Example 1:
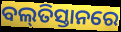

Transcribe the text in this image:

ବଲ୍‌ତିସ୍ତାନରେ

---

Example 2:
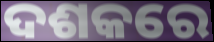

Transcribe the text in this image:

ଦଶକରେ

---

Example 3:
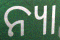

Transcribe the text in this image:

ନ୍ୟା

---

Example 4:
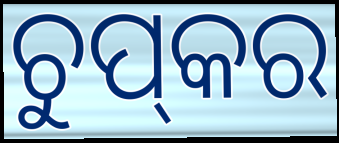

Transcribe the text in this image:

ଚୁପ୍‌କର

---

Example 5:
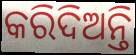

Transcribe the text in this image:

କରିଦିଅନ୍ତି